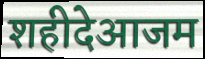
शहीदेआजम